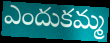
ఎందుకమ్మ